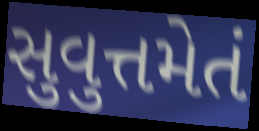
સુવુત્તમેતં